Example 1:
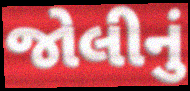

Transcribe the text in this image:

જોલીનું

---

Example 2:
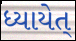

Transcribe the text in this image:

ધ્યાયેત્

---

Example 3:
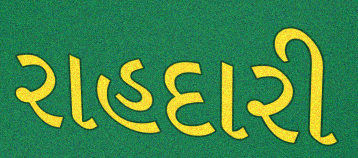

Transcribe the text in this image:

રાહદારી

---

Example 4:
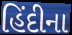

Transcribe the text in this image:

હિંદીના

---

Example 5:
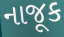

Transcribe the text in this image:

નાજૂક